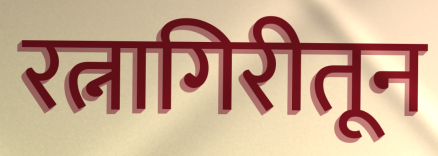
रत्नागिरीतून